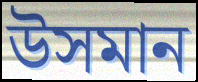
উসমান